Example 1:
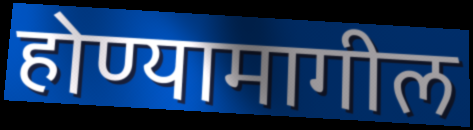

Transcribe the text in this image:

होण्यामागील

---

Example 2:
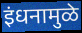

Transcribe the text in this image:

इंधनामुळे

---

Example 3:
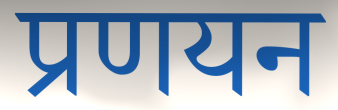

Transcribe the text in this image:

प्रणयन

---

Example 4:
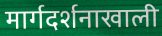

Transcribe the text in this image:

मार्गदर्शनाखाली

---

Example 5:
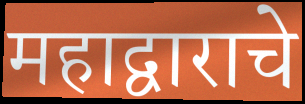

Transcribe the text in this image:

महाद्वाराचे